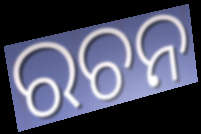
ରଚନ